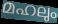
മഹലും